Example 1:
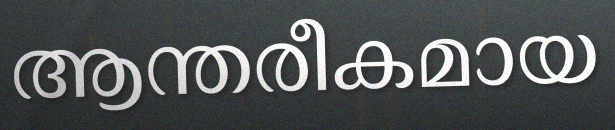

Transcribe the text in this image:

ആന്തരീകമായ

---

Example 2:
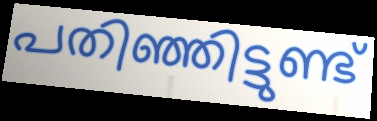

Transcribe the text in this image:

പതിഞ്ഞിട്ടുണ്ട്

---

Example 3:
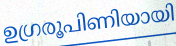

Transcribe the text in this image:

ഉഗ്രരൂപിണിയായി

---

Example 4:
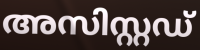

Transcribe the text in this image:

അസിസ്റ്റഡ്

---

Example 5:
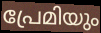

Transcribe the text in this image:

പ്രേമിയും